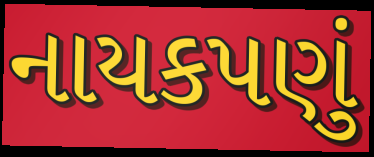
નાયકપણું